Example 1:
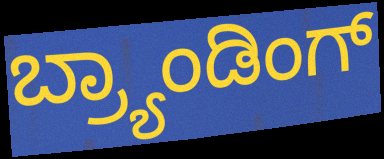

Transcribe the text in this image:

ಬ್ರ್ಯಾಂಡಿಂಗ್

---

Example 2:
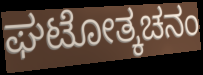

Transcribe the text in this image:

ಘಟೋತ್ಕಚನಂ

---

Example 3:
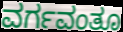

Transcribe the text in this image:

ವರ್ಗವಂತೂ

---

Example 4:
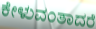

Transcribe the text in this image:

ಕೇಳುವಂತಾದರೆ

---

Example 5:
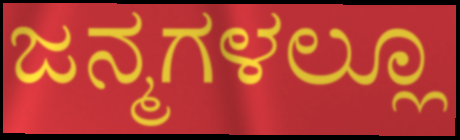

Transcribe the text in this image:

ಜನ್ಮಗಳಲ್ಲೂ